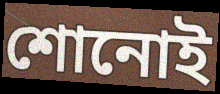
শোনোই